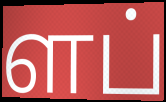
ளப்